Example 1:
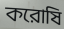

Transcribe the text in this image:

করোষি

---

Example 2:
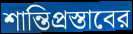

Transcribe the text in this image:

শান্তিপ্রস্তাবের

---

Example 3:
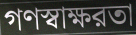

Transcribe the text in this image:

গণস্বাক্ষরতা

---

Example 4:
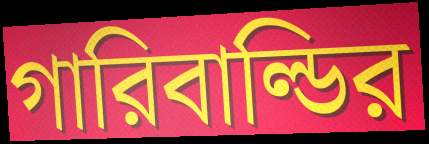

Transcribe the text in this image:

গারিবাল্ডির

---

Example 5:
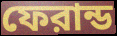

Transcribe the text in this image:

ফেরান্ড